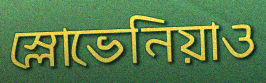
স্লোভেনিয়াও